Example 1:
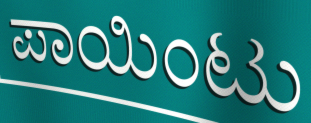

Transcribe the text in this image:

ಪಾಯಿಂಟು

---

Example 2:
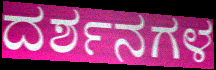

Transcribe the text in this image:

ದರ್ಶನಗಳ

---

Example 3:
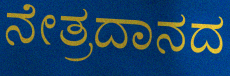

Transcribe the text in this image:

ನೇತ್ರದಾನದ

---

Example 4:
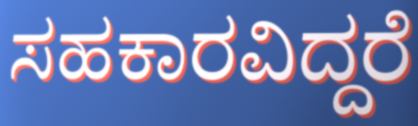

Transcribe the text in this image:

ಸಹಕಾರವಿದ್ದರೆ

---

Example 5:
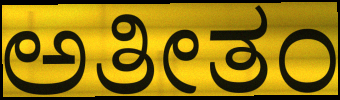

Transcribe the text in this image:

ಅತೀತಂ